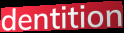
dentition